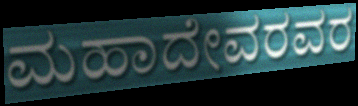
ಮಹಾದೇವರವರ